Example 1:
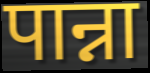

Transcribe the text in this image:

पान्ना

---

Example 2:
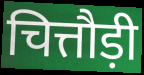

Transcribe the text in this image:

चित्तौड़ी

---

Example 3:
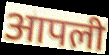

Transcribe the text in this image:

आपली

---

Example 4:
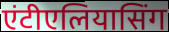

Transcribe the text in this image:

एंटीएलियासिंग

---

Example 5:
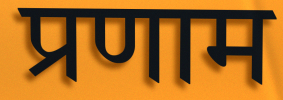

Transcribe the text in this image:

प्रणाम